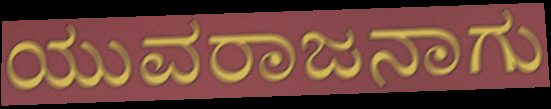
ಯುವರಾಜನಾಗು